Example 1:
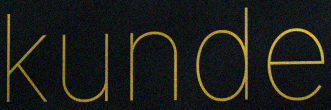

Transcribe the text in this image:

kunde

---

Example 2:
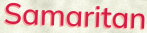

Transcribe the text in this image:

Samaritan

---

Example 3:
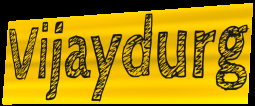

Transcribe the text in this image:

Vijaydurg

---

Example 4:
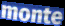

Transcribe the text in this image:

monte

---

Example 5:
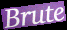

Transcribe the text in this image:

Brute